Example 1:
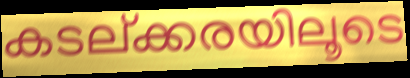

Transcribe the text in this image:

കടല്ക്കരയിലൂടെ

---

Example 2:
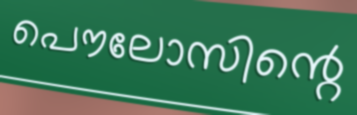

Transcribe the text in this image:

പൌലോസിന്റെ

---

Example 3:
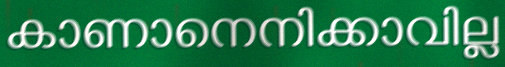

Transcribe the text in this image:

കാണാനെനിക്കാവില്ല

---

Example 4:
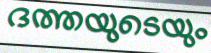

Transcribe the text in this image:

ദത്തയുടെയും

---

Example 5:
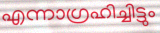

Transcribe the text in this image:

എന്നാഗ്രഹിച്ചിട്ടും